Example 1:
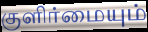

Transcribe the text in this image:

குளிர்மையும்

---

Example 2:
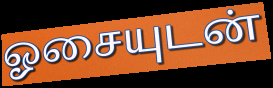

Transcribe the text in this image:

ஓசையுடன்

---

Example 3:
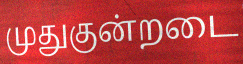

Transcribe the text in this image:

முதுகுன்றடை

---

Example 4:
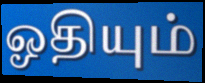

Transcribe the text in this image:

ஓதியும்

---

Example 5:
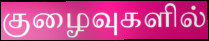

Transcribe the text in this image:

குழைவுகளில்